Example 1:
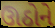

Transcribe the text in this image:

ઊઠોને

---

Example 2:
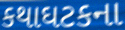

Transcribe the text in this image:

કથાઘટકના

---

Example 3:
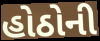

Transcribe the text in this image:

હોઠોની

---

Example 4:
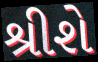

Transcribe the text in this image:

શ્રીશે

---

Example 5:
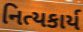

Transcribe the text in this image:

નિત્યકાર્ય